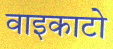
वाइकाटो